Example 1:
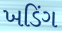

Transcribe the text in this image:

ખડિંગ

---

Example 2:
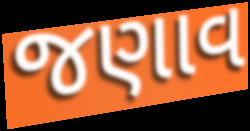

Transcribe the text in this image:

જણાવ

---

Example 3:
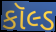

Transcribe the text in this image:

કૉલ્ડ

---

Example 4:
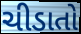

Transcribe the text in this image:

ચીડાતો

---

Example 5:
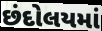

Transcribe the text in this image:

છંદોલયમાં